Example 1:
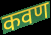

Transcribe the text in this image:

कवण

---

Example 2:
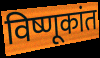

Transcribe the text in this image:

विष्णूकांत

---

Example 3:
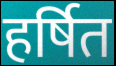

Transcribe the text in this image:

हर्षित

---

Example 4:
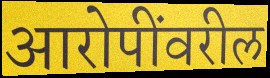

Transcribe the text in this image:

आरोपींवरील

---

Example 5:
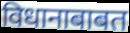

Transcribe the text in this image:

विधानाबाबत